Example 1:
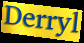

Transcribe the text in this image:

Derryl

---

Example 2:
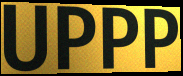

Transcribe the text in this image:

UPPP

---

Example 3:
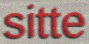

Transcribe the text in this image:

sitte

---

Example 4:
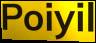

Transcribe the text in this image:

Poiyil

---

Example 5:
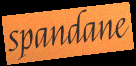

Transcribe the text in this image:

spandane